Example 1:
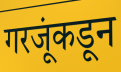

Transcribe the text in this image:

गरजूंकडून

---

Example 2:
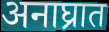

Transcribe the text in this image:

अनाघ्रात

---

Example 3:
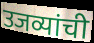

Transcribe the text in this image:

उजव्यांची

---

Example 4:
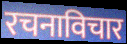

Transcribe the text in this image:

रचनाविचार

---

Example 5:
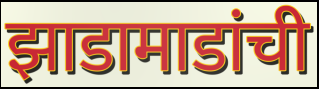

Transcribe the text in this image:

झाडामाडांची